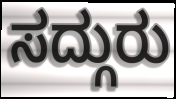
ಸದ್ಗುರು